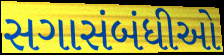
સગાસંબંધીઓ